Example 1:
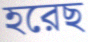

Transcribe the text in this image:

হরেছ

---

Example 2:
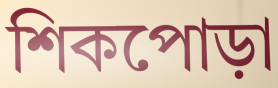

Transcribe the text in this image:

শিকপোড়া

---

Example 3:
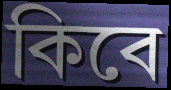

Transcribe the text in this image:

কিবে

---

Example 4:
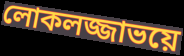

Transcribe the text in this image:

লোকলজ্জাভয়ে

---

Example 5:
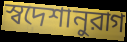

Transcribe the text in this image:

স্বদেশানুরাগ